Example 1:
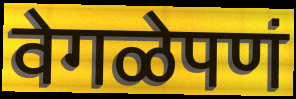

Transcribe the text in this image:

वेगळेपणं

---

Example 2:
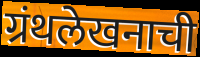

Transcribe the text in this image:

ग्रंथलेखनाची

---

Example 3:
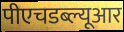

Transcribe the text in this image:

पीएचडब्ल्यूआर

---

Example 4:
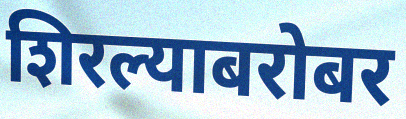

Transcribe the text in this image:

शिरल्याबरोबर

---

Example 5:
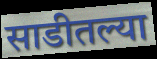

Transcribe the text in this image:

साडीतल्या